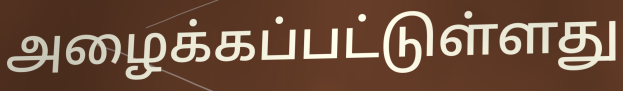
அழைக்கப்பட்டுள்ளது